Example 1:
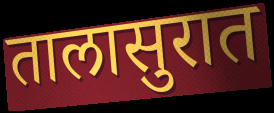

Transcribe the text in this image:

तालासुरात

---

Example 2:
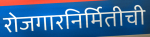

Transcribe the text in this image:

रोजगारनिर्मितीची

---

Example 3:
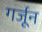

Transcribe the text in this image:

गर्जून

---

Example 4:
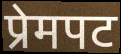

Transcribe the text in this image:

प्रेमपट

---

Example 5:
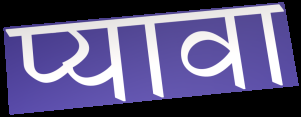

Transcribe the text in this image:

प्यावा